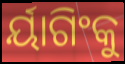
ର୍ୟାଗିଂକୁ